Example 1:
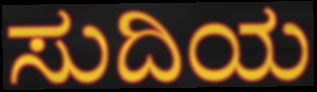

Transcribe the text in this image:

ಸುದಿಯ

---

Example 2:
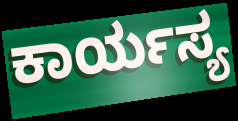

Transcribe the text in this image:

ಕಾರ್ಯಸ್ಯ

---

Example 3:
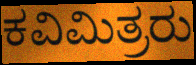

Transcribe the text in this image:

ಕವಿಮಿತ್ರರು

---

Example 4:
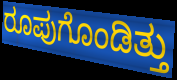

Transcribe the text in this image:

ರೂಪುಗೊಂಡಿತ್ತು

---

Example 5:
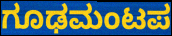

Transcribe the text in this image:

ಗೂಢಮಂಟಪ